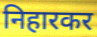
निहारकर